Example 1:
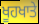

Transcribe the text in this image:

ਖੂਹਖਾਤੇ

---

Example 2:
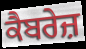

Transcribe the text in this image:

ਕੈਬਰੇਜ਼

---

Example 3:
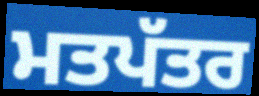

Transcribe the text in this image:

ਮਤਪੱਤਰ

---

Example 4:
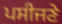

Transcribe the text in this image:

ਪਸੀਜਣੇ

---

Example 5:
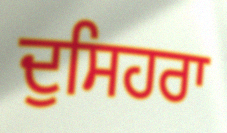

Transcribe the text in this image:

ਦੁਸਿਹਰਾ